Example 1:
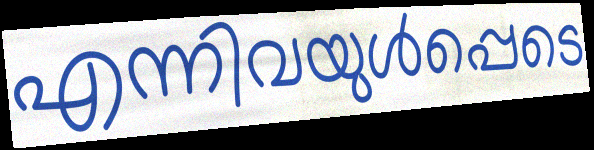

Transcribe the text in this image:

എന്നിവയുൾപ്പെടെ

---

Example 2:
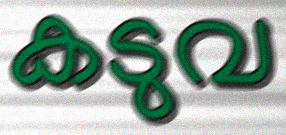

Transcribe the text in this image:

കടുവ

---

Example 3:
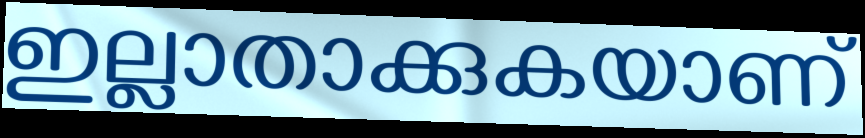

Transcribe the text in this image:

ഇല്ലാതാക്കുകയാണ്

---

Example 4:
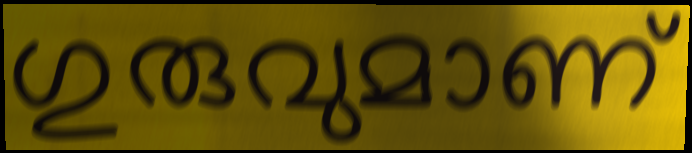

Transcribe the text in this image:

ഗുരുവുമാണ്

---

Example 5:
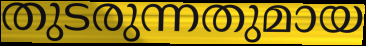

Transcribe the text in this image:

തുടരുന്നതുമായ